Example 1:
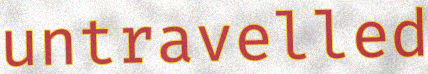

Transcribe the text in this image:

untravelled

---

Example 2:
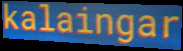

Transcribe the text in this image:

kalaingar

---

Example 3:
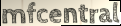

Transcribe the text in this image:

mfcentral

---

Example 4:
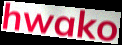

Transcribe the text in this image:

hwako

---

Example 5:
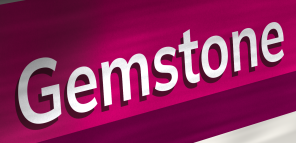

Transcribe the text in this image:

Gemstone